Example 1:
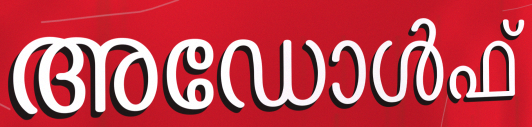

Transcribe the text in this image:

അഡോൾഫ്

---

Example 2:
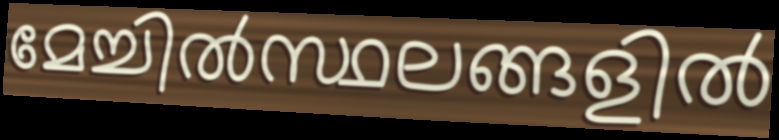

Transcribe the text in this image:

മേച്ചിൽസ്ഥലങ്ങളിൽ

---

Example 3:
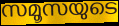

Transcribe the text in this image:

സമൂസയുടെ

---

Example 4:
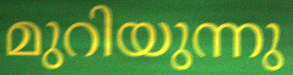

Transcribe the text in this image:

മുറിയുന്നു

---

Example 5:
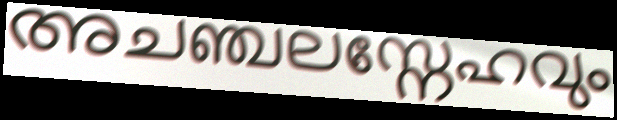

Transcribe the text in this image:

അചഞ്ചലസ്നേഹവും